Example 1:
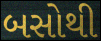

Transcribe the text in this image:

બસોથી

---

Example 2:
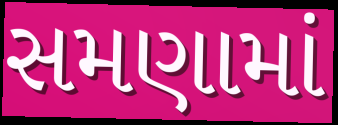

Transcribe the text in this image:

સમણામાં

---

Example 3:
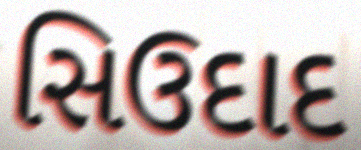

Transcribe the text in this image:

સિઉદાદ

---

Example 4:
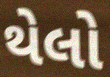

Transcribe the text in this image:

થેલો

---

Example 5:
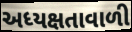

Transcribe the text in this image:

અધ્યક્ષતાવાળી